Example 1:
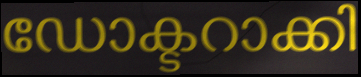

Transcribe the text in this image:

ഡോക്ടറാക്കി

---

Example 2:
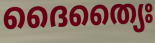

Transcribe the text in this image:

ദൈത്യൈഃ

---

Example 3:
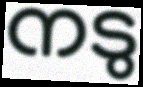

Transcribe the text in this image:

നടു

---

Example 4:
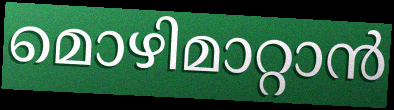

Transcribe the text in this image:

മൊഴിമാറ്റാൻ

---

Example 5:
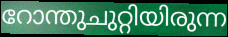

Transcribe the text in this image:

റോന്തുചുറ്റിയിരുന്ന